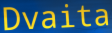
Dvaita